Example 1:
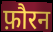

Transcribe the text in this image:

फ़ौरन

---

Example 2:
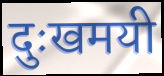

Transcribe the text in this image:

दुःखमयी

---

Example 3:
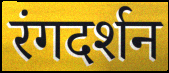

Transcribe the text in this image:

रंगदर्शन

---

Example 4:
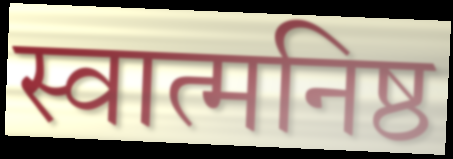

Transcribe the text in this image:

स्वात्मनिष्ठ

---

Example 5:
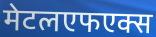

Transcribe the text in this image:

मेटलएफएक्स